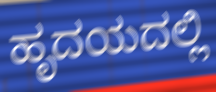
ಹೃದಯದಲ್ಲಿ